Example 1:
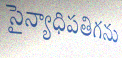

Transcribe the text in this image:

సైన్యాధిపతిగను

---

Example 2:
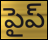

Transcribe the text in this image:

పైప్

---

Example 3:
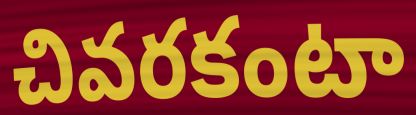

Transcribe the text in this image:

చివరకంటా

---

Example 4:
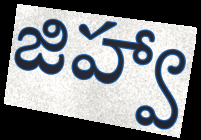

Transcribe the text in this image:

జిహ్వా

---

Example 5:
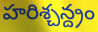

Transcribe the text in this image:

హరిశ్చన్ద్రం